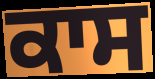
ਕਾਸ